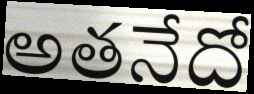
అతనేదో